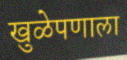
खुळेपणाला